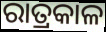
ରାତ୍ରକାଳ